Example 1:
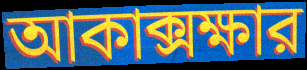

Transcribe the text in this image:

আকাক্সক্ষার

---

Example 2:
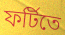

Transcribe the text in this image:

ফর্টিতে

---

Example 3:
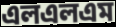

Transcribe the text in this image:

এলএলএম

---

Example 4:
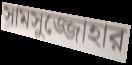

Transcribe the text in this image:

সামসুজ্জোহার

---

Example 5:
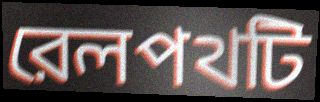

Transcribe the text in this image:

রেলপথটি